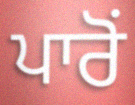
ਪਾਰੋਂ